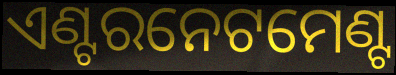
ଏଣ୍ଟରନେଟମେଣ୍ଟ